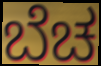
ಬೆಚ